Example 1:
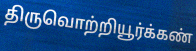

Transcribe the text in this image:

திருவொற்றியூர்க்கண்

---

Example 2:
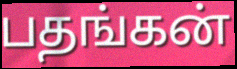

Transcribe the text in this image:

பதங்கன்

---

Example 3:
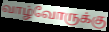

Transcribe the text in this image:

வாழ்வோருக்கு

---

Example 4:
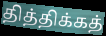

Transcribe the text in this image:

தித்திக்கத்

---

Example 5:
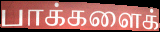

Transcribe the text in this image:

பாக்களைக்